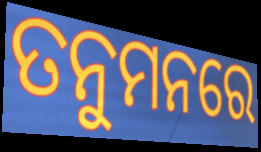
ତନୁମନରେ